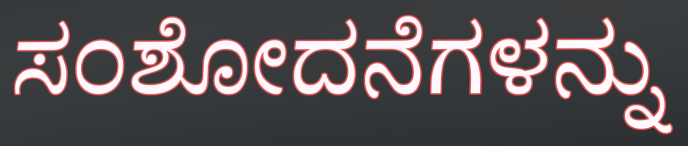
ಸಂಶೋದನೆಗಳನ್ನು